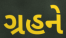
ગ્રહને